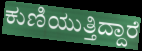
ಕುಣಿಯುತ್ತಿದ್ದಾರೆ